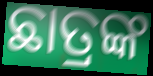
ଛାତ୍ରଙ୍କ